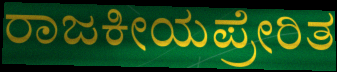
ರಾಜಕೀಯಪ್ರೇರಿತ